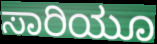
ಸಾರಿಯೂ